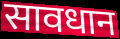
सावधान